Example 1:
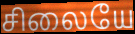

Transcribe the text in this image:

சிலையே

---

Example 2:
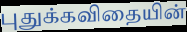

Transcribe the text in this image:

புதுக்கவிதையின்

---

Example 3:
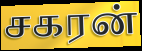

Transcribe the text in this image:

சகரன்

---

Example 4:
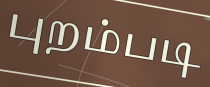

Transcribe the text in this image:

புறம்படி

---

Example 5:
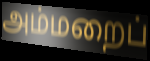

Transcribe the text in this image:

அம்மறைப்